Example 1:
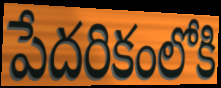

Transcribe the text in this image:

పేదరికంలోకి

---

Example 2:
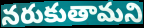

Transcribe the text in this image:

నరుకుతామని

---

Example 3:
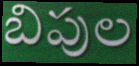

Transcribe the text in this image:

బిపుల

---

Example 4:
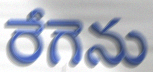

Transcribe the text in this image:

రేగెను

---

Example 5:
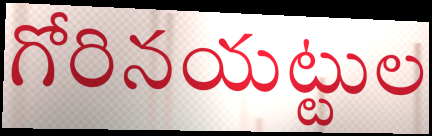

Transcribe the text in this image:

గోరినయట్టుల